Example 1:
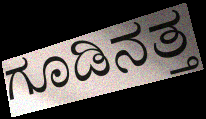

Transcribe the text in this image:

ಗೂಡಿನತ್ತ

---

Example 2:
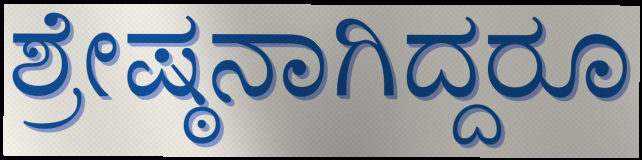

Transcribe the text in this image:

ಶ್ರೇಷ್ಠನಾಗಿದ್ದರೂ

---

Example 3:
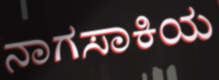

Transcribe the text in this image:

ನಾಗಸಾಕಿಯ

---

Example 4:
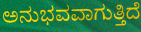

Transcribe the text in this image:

ಅನುಭವವಾಗುತ್ತಿದೆ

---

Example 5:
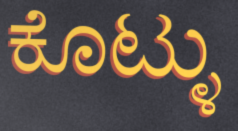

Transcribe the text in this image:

ಕೊಟ್ಳು